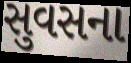
સુવસના